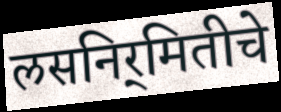
लसनिर्मितीचे